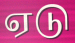
ஏடு